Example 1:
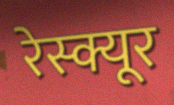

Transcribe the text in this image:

रेस्क्यूर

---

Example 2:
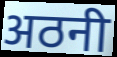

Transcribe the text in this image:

अठनी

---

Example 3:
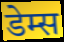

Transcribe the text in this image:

डेम्स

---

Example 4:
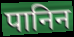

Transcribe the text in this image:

पानिन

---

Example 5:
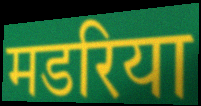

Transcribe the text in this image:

मडरिया